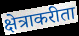
क्षेत्राकरीता